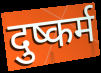
दुष्कर्म